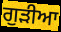
ਗੁਡ਼ੀਆ